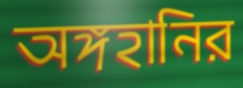
অঙ্গহানির